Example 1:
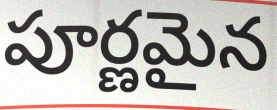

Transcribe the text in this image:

పూర్ణమైన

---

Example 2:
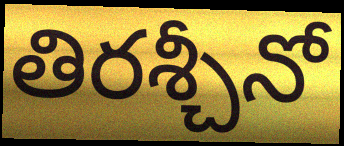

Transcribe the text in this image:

తిరశ్చీనో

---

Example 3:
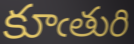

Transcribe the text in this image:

కూఁతురి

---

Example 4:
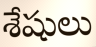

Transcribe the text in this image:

శేషులు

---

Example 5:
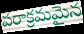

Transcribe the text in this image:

పరాక్రమమైన